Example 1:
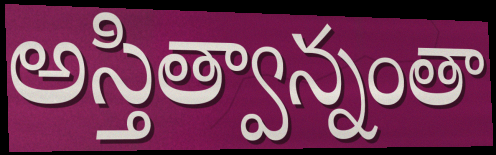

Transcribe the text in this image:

అస్తిత్వాన్నంతా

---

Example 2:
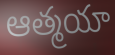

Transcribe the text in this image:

ఆత్మయా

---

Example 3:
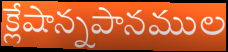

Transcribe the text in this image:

క్లేషాన్నపానముల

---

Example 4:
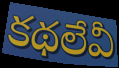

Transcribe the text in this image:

కథలేవీ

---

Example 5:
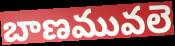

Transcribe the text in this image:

బాణమువలె